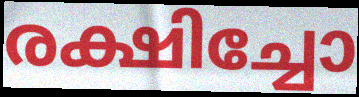
രക്ഷിച്ചോ